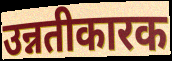
उन्नतीकारक